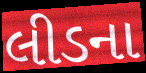
લીડના